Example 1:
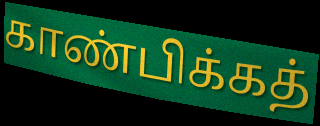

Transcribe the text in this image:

காண்பிக்கத்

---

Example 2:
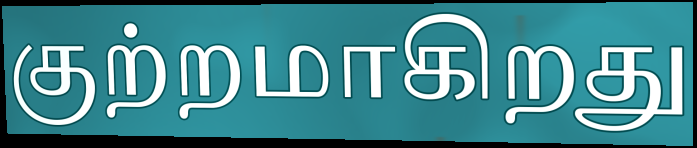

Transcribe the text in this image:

குற்றமாகிறது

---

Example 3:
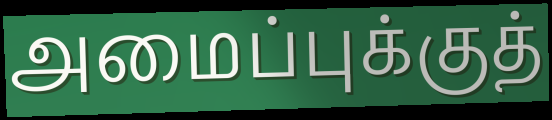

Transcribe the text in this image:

அமைப்புக்குத்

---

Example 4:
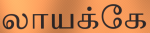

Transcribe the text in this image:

லாயக்கே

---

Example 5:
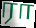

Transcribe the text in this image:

ரா